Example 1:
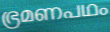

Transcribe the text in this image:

ഭ്രമണപഥം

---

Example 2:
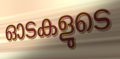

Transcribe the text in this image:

ഓടകളുടെ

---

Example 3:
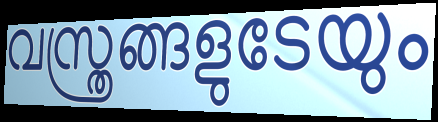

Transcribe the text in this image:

വസ്ത്രങ്ങളുടേയും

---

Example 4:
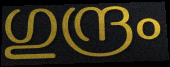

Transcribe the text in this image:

ഗുന്ദ്രം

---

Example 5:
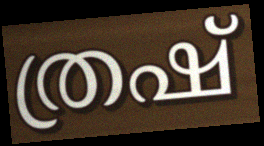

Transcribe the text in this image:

ത്രഷ്